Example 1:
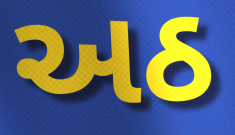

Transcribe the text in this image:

અઠ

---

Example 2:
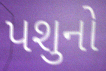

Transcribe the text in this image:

પશુનો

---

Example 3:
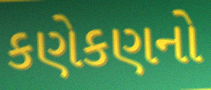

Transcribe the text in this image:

કણેકણનો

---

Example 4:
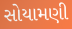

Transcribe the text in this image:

સોયામણી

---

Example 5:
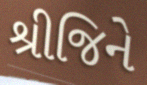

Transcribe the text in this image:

શ્રીજિને